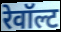
रेवॉल्ट